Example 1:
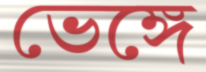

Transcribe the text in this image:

ভেঙ্গে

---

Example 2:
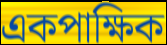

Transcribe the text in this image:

একপাক্ষিক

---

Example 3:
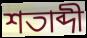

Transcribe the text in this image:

শতাব্দী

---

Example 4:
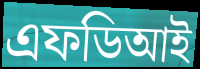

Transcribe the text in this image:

এফডিআই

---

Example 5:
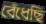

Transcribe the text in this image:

বেঁধেছি